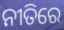
ନୀତିରେ